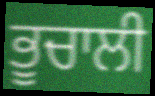
ਭੂਚਾਲੀ